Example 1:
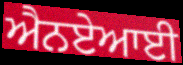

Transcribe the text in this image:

ਐਨਏਆਈ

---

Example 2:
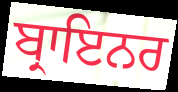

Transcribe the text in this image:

ਬ੍ਰਾਇਨਰ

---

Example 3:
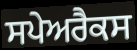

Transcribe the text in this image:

ਸਪੇਅਰੈਕਸ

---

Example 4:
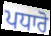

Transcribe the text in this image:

ਪਧਾਰੋ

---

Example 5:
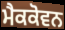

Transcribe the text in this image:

ਮੈਕਕੋਵਨ